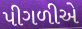
પીગળીએ